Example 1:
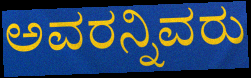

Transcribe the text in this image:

ಅವರನ್ನಿವರು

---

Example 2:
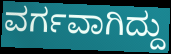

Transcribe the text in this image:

ವರ್ಗವಾಗಿದ್ದು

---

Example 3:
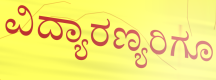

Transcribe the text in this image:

ವಿದ್ಯಾರಣ್ಯರಿಗೂ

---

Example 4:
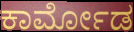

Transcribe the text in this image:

ಕಾರ್ಮೋಡ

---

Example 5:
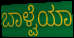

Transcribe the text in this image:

ಬಾಳ್ವೆಯಾ